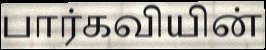
பார்கவியின்